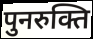
पुनरुक्ति